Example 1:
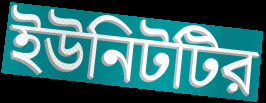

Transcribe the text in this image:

ইউনিটটির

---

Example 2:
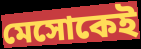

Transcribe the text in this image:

মেসোকেই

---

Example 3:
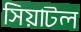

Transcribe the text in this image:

সিয়াটল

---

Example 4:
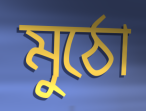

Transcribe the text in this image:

মুঠো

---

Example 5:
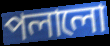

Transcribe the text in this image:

পলালো